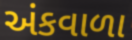
અંકવાળા